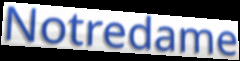
Notredame